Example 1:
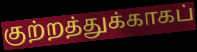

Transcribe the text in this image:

குற்றத்துக்காகப்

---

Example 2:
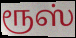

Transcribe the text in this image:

ரூஸ்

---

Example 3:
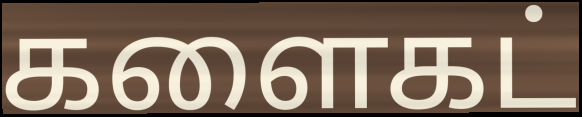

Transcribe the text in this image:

களைகட்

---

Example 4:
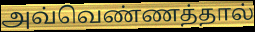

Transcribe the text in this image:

அவ்வெண்ணத்தால்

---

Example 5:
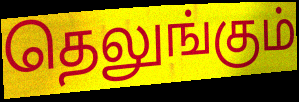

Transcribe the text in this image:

தெலுங்கும்